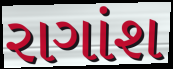
રાગાંશ